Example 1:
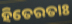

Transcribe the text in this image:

ହିତେରତାଃ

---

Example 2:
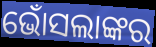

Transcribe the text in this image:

ଭୋଁସଲାଙ୍କର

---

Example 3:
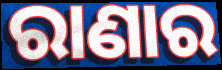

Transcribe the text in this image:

ରାଣାର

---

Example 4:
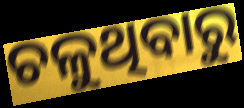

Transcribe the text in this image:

ଚଳୁଥିବାରୁ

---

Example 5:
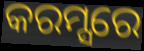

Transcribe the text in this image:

କରମ୍ସରେ